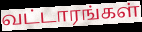
வட்டாரங்கள்